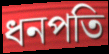
ধনপতি